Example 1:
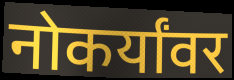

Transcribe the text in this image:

नोकर्यांवर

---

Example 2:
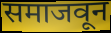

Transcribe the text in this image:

समाजवून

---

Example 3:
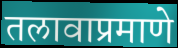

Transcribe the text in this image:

तलावाप्रमाणे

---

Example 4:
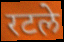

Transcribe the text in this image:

रटले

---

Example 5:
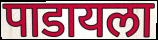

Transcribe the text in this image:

पाडायला